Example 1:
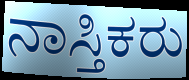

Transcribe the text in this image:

ನಾಸ್ತಿಕರು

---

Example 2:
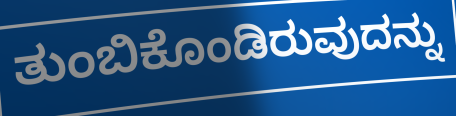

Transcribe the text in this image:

ತುಂಬಿಕೊಂಡಿರುವುದನ್ನು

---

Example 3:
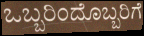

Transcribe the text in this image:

ಒಬ್ಬರಿಂದೊಬ್ಬರಿಗೆ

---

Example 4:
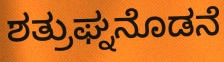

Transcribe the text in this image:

ಶತ್ರುಘ್ನನೊಡನೆ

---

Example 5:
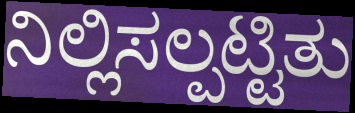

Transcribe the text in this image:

ನಿಲ್ಲಿಸಲ್ಪಟ್ಟಿತು